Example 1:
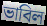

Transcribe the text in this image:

ভাবিল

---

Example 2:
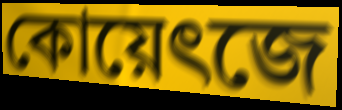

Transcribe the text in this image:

কোয়েৎজে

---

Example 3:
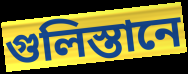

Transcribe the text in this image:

গুলিস্তানে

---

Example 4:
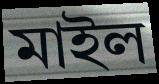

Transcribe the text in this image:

মাইল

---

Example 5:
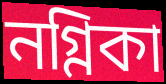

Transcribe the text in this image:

নগ্নিকা